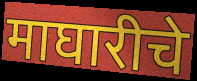
माघारीचे